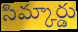
సిమ్కార్డు